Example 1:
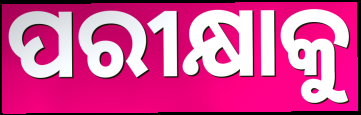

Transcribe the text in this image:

ପରୀକ୍ଷାକୁ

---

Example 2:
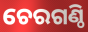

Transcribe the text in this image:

ଚେରଗଣ୍ଠି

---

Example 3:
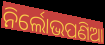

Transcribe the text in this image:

ନିର୍ଲୋଭପଣିଆ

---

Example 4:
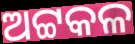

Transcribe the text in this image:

ଅଟ୍ଟକଳ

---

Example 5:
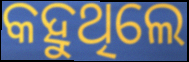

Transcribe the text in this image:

କହୁଥିଲେ